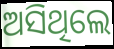
ଅସିଥିଲେ